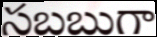
సబబుగా